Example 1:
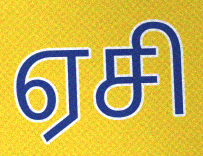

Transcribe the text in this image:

ஏசி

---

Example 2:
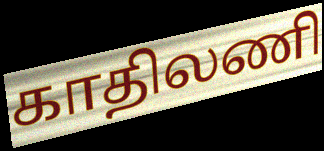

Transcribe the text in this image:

காதிலணி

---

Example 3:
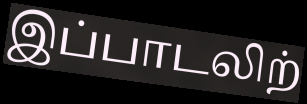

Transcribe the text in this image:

இப்பாடலிற்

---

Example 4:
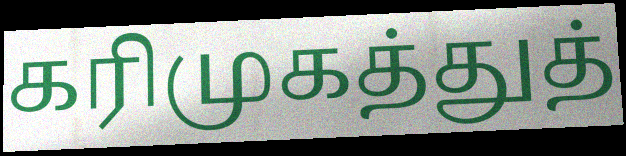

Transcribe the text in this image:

கரிமுகத்துத்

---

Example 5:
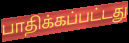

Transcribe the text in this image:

பாதிக்கப்பட்டது